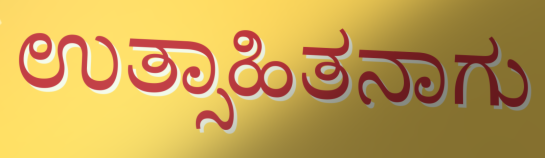
ಉತ್ಸಾಹಿತನಾಗು